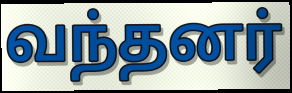
வந்தனர்